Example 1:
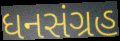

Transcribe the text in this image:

ધનસંગ્રહ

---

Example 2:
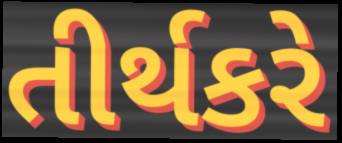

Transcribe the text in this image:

તીર્થકરે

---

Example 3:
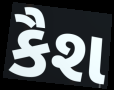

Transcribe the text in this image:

કૈશ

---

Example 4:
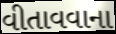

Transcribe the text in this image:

વીતાવવાના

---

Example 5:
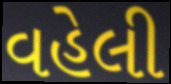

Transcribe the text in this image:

વહેલી